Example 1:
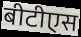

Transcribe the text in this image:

बीटीएस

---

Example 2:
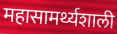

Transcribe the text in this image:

महासामर्थ्यशाली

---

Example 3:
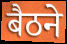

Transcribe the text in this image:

बैठने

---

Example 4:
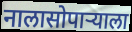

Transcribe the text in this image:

नालासोपाऱ्याला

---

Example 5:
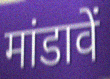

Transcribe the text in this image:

मांडावें